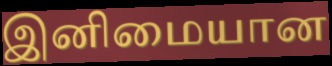
இனிமையான